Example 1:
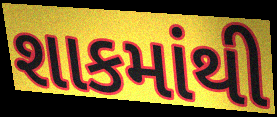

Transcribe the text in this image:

શાકમાંથી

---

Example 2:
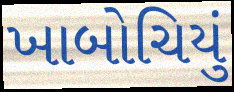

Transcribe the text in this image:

ખાબોચિયું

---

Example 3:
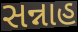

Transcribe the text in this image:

સન્નાહ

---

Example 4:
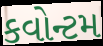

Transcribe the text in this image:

કવોન્ટમ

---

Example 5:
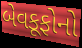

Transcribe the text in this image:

બેવકૂફોનો